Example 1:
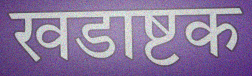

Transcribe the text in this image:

खडाष्टक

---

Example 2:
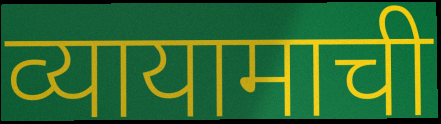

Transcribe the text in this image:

व्यायामाची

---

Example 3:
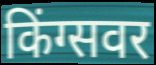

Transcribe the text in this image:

किंग्सवर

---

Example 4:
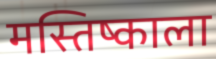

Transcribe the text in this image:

मस्तिष्काला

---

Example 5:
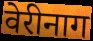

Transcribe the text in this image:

वेरीनाग